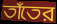
তাঁতের